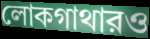
লোকগাথারও